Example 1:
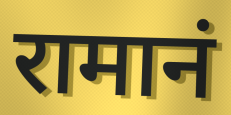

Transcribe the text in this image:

रामानं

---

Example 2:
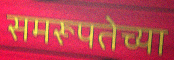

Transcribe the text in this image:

समरूपतेच्या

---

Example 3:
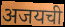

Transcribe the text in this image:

अजयची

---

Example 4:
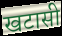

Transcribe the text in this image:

खटासी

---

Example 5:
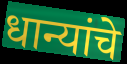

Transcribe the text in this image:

धान्यांचे